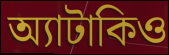
অ্যাটাকিও